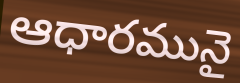
ఆధారమునై